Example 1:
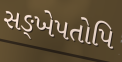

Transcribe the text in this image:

સઙ્ખેપતોપિ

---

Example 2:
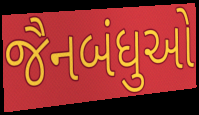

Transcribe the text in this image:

જૈનબંધુઓ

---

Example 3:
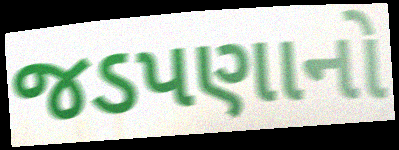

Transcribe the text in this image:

જડપણાનો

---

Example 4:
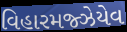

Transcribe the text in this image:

વિહારમજ્ઝેયેવ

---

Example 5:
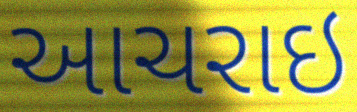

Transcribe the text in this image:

આચરાઇ